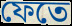
ফেতে